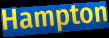
Hampton